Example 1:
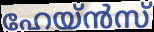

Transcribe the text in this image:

ഹേയ്ൻസ്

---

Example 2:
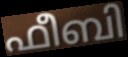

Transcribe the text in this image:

ഫീബി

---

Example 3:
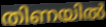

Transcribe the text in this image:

തിണയിൽ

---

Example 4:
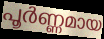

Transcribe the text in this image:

പൂർണ്ണമായ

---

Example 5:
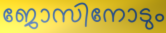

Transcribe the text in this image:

ജോസിനോടും